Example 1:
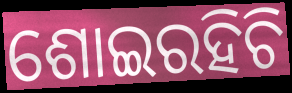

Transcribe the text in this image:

ଶୋଇରହିଚି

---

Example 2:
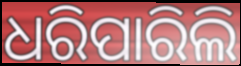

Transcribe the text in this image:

ଧରିପାରିଲି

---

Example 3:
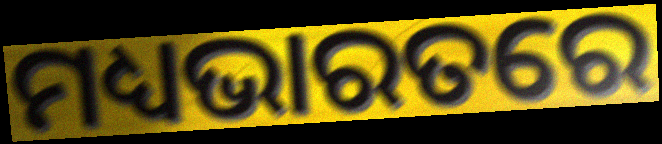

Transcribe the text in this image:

ମଧ୍ୟଭାରତରେ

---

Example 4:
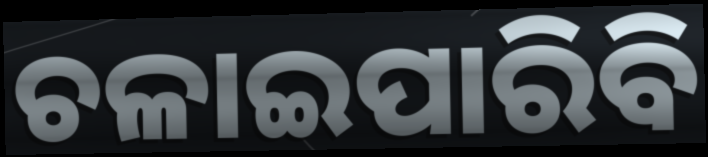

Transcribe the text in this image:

ଚଳାଇପାରିବି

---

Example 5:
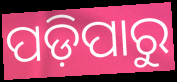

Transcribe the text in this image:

ପଡ଼ିପାରୁ